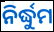
ନିର୍ଦ୍ଧୁମ